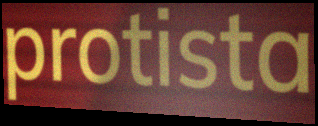
protista